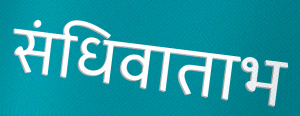
संधिवाताभ